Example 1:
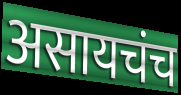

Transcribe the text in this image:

असायचंच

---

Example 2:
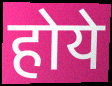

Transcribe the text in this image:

होये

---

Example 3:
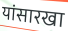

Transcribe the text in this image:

यांसारखा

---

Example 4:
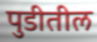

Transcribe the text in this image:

पुडीतील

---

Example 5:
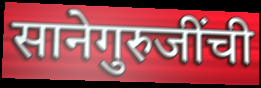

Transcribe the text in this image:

सानेगुरुजींची